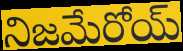
నిజమేరోయ్